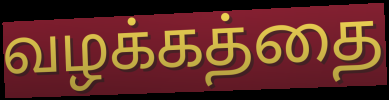
வழக்கத்தை